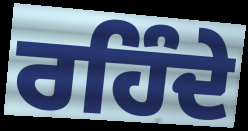
ਰਹਿੰਦੇ